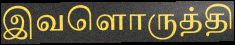
இவளொருத்தி